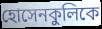
হোসেনকুলিকে